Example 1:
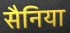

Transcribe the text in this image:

सैनिया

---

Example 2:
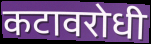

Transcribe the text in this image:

कटावरोधी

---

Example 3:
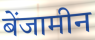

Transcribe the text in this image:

बेंजामीन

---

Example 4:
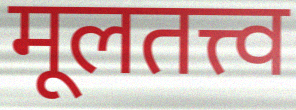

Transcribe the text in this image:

मूलतत्त्व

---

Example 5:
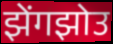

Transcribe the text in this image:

झेंगझोउ